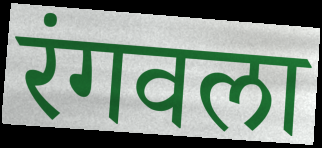
रंगवला